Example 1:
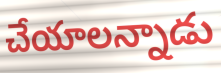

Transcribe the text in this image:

చేయాలన్నాడు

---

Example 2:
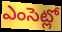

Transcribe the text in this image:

ఎంసెట్లో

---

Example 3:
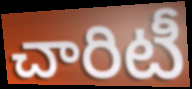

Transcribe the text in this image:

చారిటీ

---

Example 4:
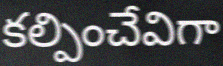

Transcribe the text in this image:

కల్పించేవిగా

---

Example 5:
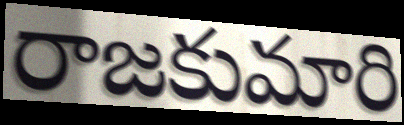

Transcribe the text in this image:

రాజకుమారి